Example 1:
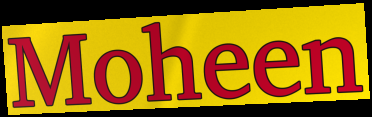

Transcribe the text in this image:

Moheen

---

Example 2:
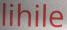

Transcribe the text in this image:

lihile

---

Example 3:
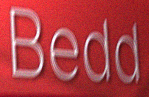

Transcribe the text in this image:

Bedd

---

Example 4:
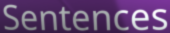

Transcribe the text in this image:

Sentences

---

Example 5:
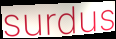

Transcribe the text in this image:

surdus